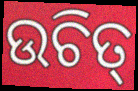
ଉଚିତ୍